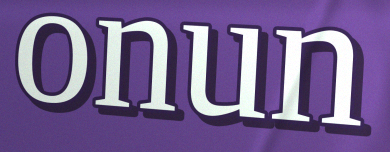
onun